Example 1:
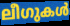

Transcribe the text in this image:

ലീഗുകൾ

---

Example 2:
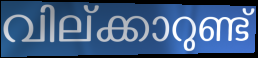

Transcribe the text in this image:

വില്ക്കാറുണ്ട്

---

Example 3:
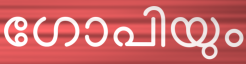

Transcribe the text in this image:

ഗോപിയും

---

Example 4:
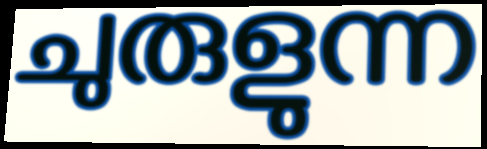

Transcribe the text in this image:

ചുരുളുന്ന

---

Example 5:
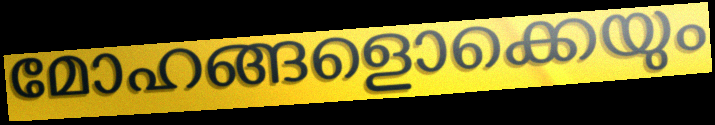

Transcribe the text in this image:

മോഹങ്ങളൊക്കെയും